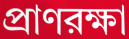
প্রাণরক্ষা